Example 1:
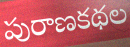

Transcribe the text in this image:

పురాణకథల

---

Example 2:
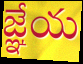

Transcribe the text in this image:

జ్ఞేయ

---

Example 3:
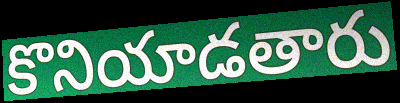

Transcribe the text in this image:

కొనియాడతారు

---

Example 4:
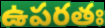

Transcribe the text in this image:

ఉపరతః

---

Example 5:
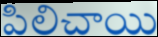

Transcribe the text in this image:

పిలిచాయి